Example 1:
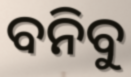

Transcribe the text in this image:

ବନିବୁ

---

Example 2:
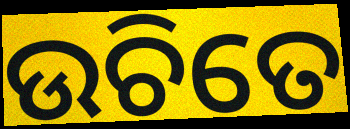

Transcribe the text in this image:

ଉଚିତେ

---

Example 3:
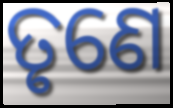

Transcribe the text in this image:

ତୃଣେ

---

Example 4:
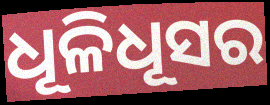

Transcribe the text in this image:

ଧୂଳିଧୂସର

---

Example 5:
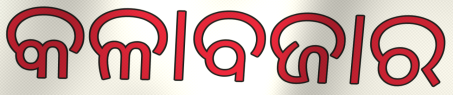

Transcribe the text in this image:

କଳାବଜାର